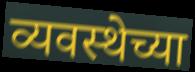
व्यवस्थेच्या